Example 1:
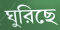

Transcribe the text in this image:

ঘুরিছে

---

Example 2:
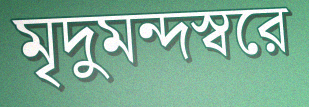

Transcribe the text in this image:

মৃদুমন্দস্বরে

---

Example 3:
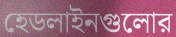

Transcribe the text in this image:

হেডলাইনগুলোর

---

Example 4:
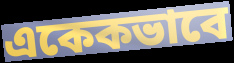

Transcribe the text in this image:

একেকভাবে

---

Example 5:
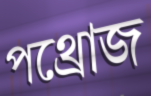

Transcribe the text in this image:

পথ্রোজ